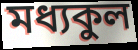
মধ্যকুল